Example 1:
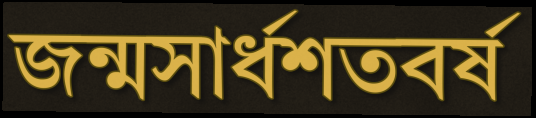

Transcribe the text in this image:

জন্মসার্ধশতবর্ষ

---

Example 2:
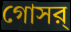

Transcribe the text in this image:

গোসর্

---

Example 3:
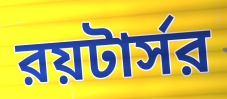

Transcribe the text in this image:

রয়টার্সর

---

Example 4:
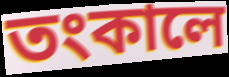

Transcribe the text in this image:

তংকালে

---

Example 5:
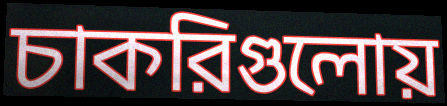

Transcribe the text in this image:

চাকরিগুলোয়